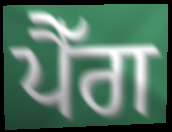
ਪੈੱਗ